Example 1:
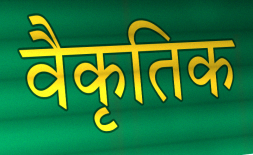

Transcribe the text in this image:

वैकृतिक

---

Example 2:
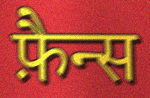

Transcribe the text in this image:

फ़ैन्स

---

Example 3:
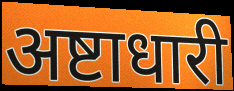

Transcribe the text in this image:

अष्टाधारी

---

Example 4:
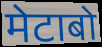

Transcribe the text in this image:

मेटाबो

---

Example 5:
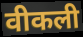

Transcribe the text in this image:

वीकली